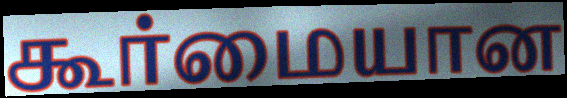
கூர்மையான